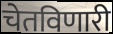
चेतविणारी